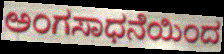
ಅಂಗಸಾಧನೆಯಿಂದ